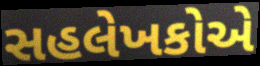
સહલેખકોએ